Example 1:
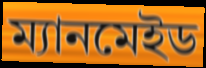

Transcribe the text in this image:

ম্যানমেইড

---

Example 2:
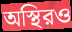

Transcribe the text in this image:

অস্থিরও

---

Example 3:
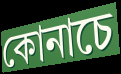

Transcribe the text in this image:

কোনাচে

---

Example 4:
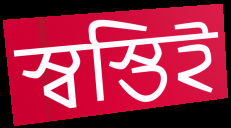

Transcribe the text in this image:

স্বস্তিই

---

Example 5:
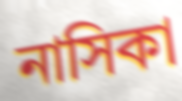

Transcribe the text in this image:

নাসিকা